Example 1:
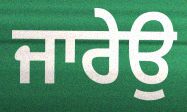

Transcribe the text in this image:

ਜਾਰੇਉ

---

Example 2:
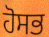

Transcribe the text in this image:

ਹੋਸਭ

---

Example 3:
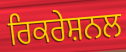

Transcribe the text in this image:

ਰਿਕਰੇਸ਼ਨਲ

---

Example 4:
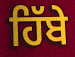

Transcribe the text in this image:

ਹਿੱਬੇ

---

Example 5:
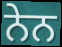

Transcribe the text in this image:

ਨੇਨ